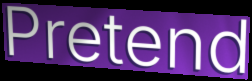
Pretend